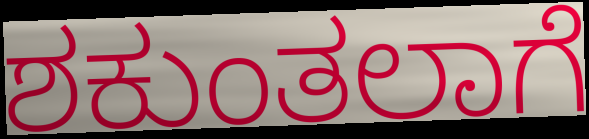
ಶಕುಂತಲಾಗೆ